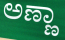
ಅಣ್ಣಾ